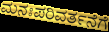
ಮನಃಪರಿವರ್ತನೆಗೆ